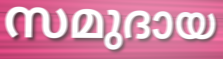
സമുദായ